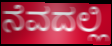
ನೆವದಲ್ಲಿ